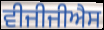
ਵੀਜੀਜੀਐਸ